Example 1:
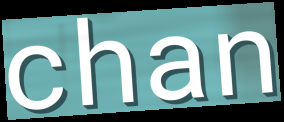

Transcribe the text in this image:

chan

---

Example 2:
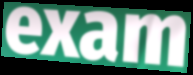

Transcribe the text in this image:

exam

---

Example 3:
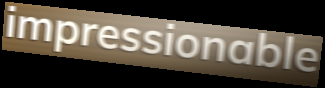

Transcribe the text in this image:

impressionable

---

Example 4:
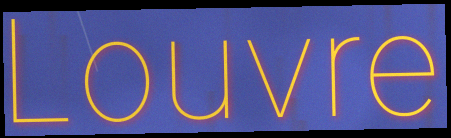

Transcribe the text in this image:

Louvre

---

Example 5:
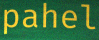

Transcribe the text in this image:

pahel